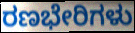
ರಣಭೇರಿಗಳು